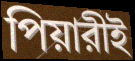
পিয়ারীই